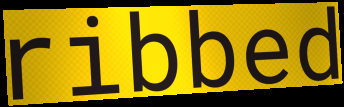
ribbed